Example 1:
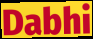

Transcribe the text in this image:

Dabhi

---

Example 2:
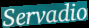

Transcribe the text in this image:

Servadio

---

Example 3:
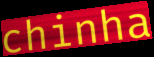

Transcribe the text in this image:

chinha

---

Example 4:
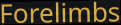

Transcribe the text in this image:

Forelimbs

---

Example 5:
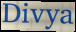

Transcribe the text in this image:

Divya